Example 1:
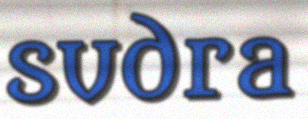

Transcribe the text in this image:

sudra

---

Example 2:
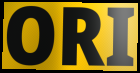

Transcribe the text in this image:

ORI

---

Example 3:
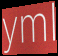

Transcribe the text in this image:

yml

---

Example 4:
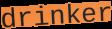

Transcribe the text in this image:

drinker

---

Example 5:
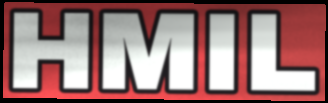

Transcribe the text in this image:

HMIL